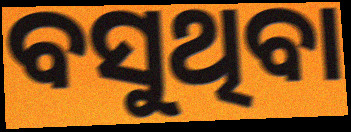
ବସୁଥିବା